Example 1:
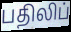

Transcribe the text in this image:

பதிலிப்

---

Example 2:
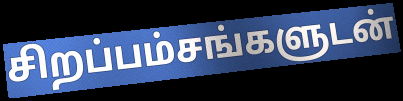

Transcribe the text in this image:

சிறப்பம்சங்களுடன்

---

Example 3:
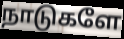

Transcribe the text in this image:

நாடுகளே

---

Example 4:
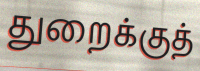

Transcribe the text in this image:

துறைக்குத்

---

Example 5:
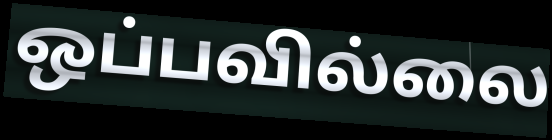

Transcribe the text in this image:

ஒப்பவில்லை